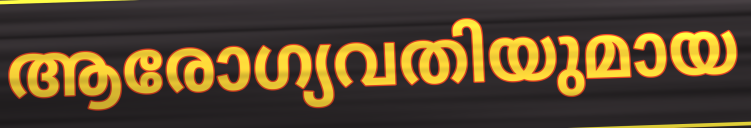
ആരോഗ്യവതിയുമായ